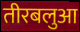
तीरबलुआ